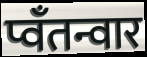
प्वॅंतन्वार